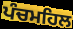
ਪੰਚਮਹਿਲ